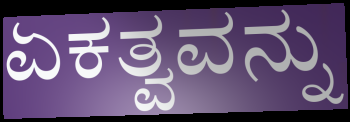
ಏಕತ್ವವನ್ನು